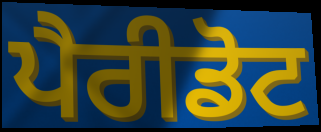
ਪੈਰੀਡੋਟ